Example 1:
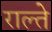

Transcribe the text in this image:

राल्ते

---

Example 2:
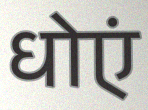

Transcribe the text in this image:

धोएं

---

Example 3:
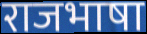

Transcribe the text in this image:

राजभाषा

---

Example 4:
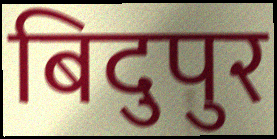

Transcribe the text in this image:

बिदुपुर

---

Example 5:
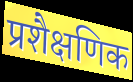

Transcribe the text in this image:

प्रशैक्षणिक